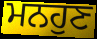
ਮਨਹੁਣ